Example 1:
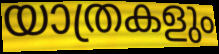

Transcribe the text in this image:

യാത്രകളും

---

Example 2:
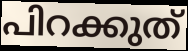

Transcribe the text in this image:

പിറക്കുത്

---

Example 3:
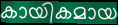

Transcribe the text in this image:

കായികമായ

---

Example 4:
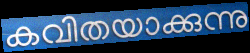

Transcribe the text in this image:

കവിതയാക്കുന്നു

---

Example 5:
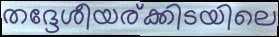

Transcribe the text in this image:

തദ്ദേശീയര്ക്കിടയിലെ